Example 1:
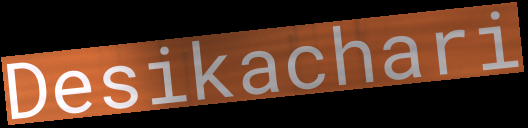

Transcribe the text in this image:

Desikachari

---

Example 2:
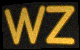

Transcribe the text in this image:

WZ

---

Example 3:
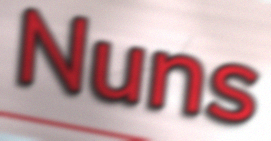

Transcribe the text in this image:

Nuns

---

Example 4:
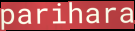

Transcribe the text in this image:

parihara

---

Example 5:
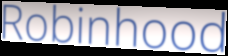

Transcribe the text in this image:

Robinhood